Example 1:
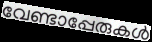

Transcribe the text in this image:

വേണ്ടാപ്പേരുകൾ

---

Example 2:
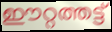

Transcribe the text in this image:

ഈറ്റത്തട്ട്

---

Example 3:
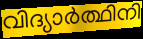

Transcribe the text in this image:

വിദ്യാർത്ഥിനി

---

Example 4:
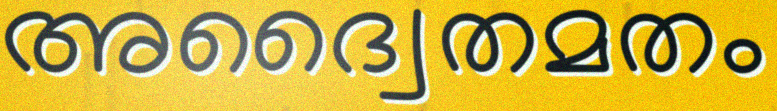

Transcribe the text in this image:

അദ്വൈതമതം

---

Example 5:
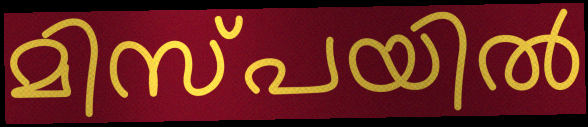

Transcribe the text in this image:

മിസ്പയിൽ